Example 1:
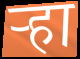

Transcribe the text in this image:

ऱ्हा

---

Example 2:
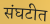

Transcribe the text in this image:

संघटीत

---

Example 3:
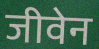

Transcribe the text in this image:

जीवेन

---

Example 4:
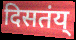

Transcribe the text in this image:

दिसतंय्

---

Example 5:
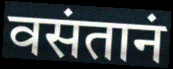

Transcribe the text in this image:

वसंतानं